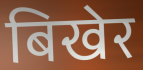
बिखेर